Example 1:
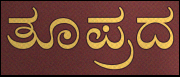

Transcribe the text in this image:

ತೂಪ್ರದ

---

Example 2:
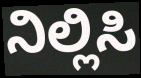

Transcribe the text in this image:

ನಿಲ್ಲಿಸಿ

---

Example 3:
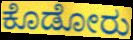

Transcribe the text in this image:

ಕೊಡೋರು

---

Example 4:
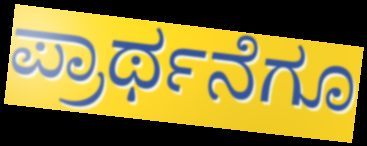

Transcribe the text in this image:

ಪ್ರಾರ್ಥನೆಗೂ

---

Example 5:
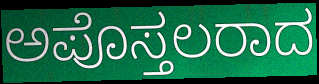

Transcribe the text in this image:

ಅಪೊಸ್ತಲರಾದ